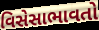
વિસેસાભાવતો